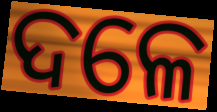
ଦଳେ